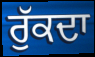
ਰੁੱਕਦਾ